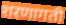
शरणागती